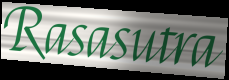
Rasasutra